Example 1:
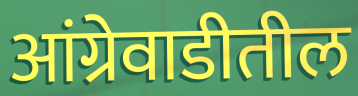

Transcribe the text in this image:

आंग्रेवाडीतील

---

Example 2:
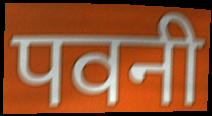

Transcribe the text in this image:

पवनी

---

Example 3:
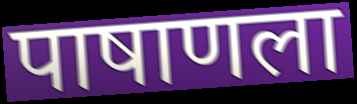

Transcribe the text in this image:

पाषाणला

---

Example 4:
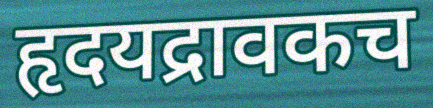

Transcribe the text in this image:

हृदयद्रावकच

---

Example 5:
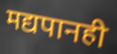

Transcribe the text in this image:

मद्यपानही